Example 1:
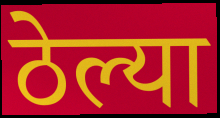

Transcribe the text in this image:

ठेल्या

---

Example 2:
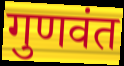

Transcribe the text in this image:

गुणवंत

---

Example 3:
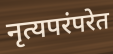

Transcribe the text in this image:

नृत्यपरंपरेत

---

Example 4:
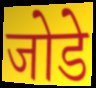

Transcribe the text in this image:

जोडे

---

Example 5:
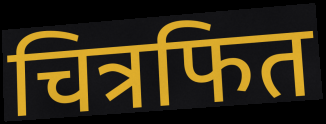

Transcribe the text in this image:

चित्रफित